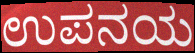
ಉಪನಯ